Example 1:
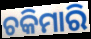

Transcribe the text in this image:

ଚକିମାରି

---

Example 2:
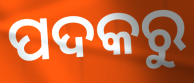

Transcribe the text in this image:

ପଦକରୁ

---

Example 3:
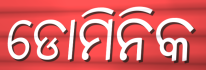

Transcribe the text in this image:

ଡୋମିନିକ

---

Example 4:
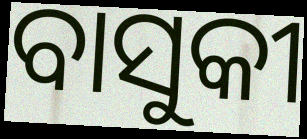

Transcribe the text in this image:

ବାସୁକୀ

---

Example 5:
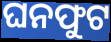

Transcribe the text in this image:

ଘନଫୁଟ